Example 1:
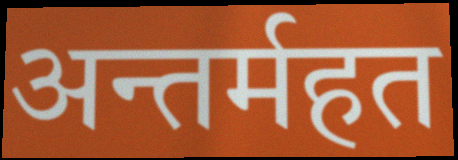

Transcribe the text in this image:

अन्तर्महत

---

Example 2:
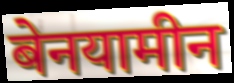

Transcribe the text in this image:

बेनयामीन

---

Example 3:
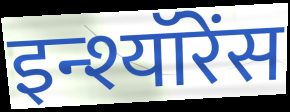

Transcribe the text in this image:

इन्श्यॉरेंस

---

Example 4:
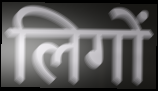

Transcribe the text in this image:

लिगों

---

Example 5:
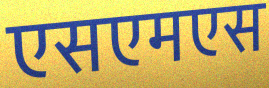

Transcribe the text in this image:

एसएमएस